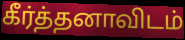
கீர்த்தனாவிடம்